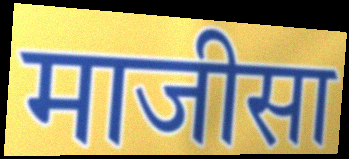
माजीसा